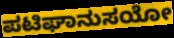
ಪಟಿಘಾನುಸಯೋ